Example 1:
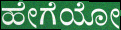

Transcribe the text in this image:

ಹೇಗೆಯೋ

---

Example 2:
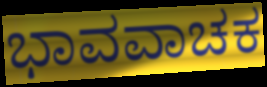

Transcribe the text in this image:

ಭಾವವಾಚಕ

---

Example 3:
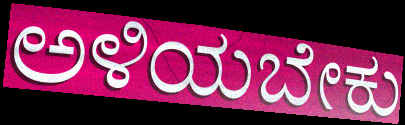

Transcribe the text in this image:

ಅಳಿಯಬೇಕು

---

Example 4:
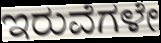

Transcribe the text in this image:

ಇರುವೆಗಳೇ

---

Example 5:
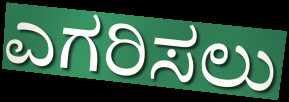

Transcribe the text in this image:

ಎಗರಿಸಲು